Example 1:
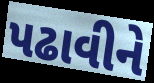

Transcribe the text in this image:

પઢાવીને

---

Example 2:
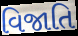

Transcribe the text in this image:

વિજાતિ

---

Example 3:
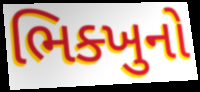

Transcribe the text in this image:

ભિક્ખુનો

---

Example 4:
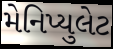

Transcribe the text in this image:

મેનિપ્યુલેટ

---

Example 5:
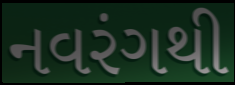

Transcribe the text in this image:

નવરંગથી